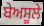
ਬੇਅਸੂਲੇ